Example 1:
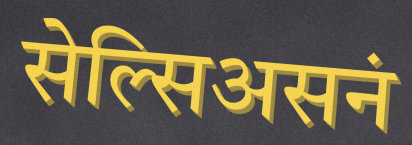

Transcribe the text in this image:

सेल्सिअसनं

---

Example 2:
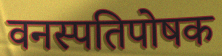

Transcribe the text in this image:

वनस्पतिपोषक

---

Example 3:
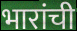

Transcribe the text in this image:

भारांची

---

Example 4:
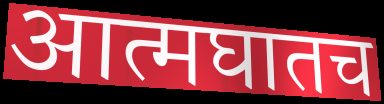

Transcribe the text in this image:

आत्मघातच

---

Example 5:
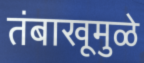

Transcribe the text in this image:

तंबाखूमुळे